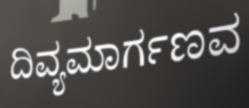
ದಿವ್ಯಮಾರ್ಗಣವ